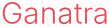
Ganatra